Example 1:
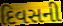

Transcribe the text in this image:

દિવસની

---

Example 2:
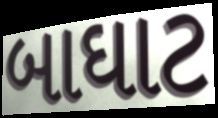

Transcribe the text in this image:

બાઘાટ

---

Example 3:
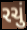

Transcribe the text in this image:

રચું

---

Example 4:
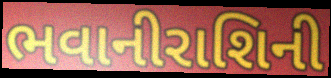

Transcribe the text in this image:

ભવાનીરાશિની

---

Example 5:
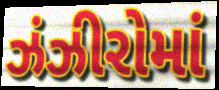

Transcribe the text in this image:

ઝંઝીરોમાં